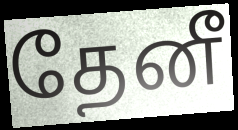
தேனீ